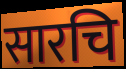
सारचि